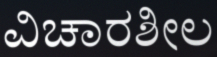
ವಿಚಾರಶೀಲ